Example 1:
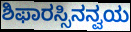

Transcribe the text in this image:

ಶಿಫಾರಸ್ಸಿನನ್ವಯ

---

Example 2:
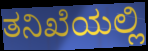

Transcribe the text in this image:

ತನಿಖೆಯಲ್ಲಿ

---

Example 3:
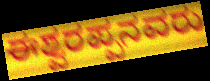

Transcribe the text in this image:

ಈಶ್ವರಪ್ಪನವರು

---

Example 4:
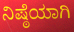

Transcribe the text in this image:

ನಿಷ್ಠೆಯಾಗಿ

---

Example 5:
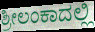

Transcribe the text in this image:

ಶ್ರೀಲಂಕಾದಲ್ಲಿ